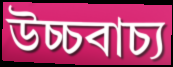
উচ্চবাচ্য